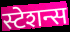
स्टेशन्स